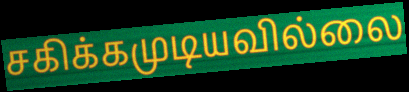
சகிக்கமுடியவில்லை